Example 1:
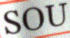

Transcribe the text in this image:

SOU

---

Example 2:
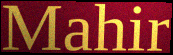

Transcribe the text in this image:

Mahir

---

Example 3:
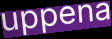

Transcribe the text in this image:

uppena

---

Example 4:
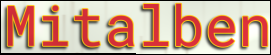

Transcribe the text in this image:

Mitalben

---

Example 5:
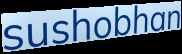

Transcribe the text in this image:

sushobhan